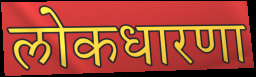
लोकधारणा